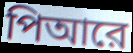
পিআরে